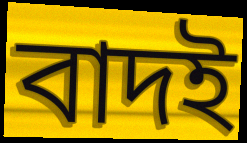
বাদই